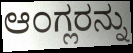
ಆಂಗ್ಲರನ್ನು